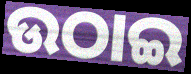
ଉଠାଇ